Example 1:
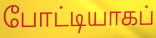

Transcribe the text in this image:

போட்டியாகப்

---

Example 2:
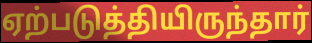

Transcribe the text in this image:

ஏற்படுத்தியிருந்தார்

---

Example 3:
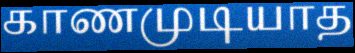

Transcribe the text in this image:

காணமுடியாத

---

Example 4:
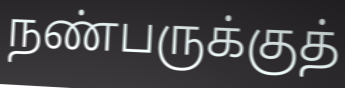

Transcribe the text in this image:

நண்பருக்குத்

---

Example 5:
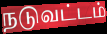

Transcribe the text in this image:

நடுவட்டம்